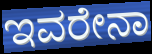
ಇವರೇನಾ